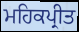
ਮਹਿਕਪ੍ਰੀਤ